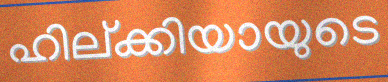
ഹില്ക്കിയായുടെ